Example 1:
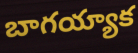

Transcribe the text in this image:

బాగయ్యాక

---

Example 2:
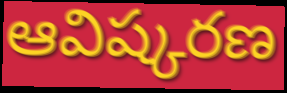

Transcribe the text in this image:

ఆవిష్కరణ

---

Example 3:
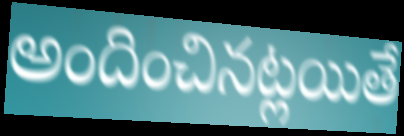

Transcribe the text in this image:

అందించినట్లయితే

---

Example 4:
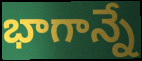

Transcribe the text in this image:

భాగాన్నే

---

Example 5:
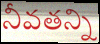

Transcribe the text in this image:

నీవతన్ని